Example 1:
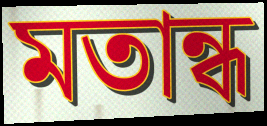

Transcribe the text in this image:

মতান্ধ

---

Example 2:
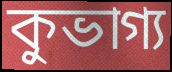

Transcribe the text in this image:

কুভাগ্য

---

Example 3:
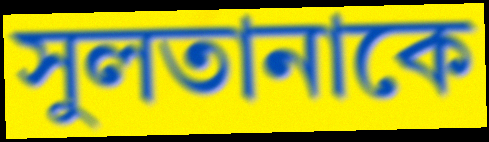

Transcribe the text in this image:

সুলতানাকে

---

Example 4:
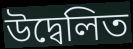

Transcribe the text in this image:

উদ্বেলিত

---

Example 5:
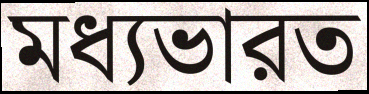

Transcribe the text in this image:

মধ্যভারত